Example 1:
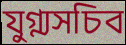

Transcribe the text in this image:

যুগ্মসচিব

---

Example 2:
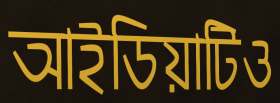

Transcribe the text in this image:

আইডিয়াটিও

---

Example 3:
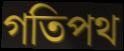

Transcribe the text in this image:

গতিপথ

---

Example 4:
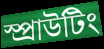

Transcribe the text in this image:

স্প্রাউটিং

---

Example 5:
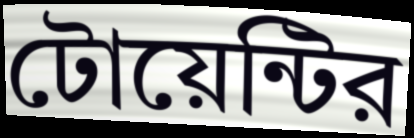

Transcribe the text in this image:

টোয়েন্টির